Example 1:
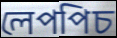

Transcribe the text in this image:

লেপপিচ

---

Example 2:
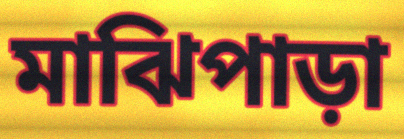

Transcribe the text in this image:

মাঝিপাড়া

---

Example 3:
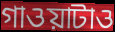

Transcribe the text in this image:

গাওয়াটাও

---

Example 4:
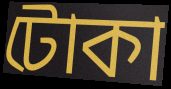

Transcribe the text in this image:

টোকা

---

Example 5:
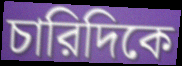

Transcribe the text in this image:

চারিদিকে